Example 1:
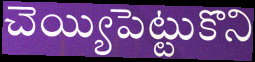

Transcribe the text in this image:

చెయ్యిపెట్టుకొని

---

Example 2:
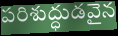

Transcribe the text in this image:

పరిశుద్ధుడవైన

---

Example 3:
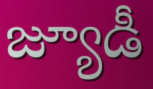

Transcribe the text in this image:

జ్యూడీ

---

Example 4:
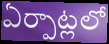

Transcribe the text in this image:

ఏర్పాట్లలో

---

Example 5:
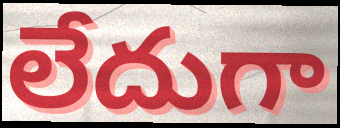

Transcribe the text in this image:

లేదుగా